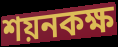
শয়নকক্ষ